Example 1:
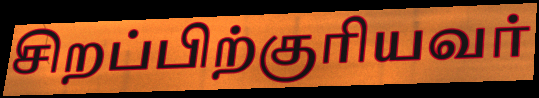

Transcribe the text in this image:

சிறப்பிற்குரியவர்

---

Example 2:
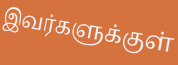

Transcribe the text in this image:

இவர்களுக்குள்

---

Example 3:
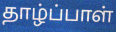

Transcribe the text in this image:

தாழ்ப்பாள்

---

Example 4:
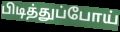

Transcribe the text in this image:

பிடித்துப்போய்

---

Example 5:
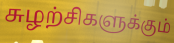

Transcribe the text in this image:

சுழற்சிகளுக்கும்